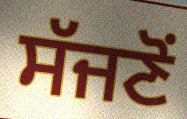
ਸੱਜਣੋਂ